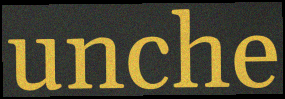
unche